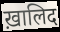
ख़ालिद